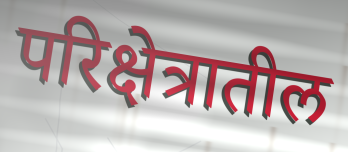
परिक्षेत्रातील